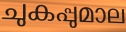
ചുകപ്പുമാല